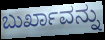
ಬುರ್ಖಾವನ್ನು